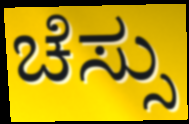
ಚೆಸ್ಸು